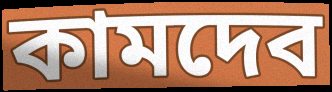
কামদেব